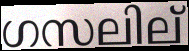
ഗസലില്